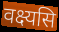
वक्ष्यसि